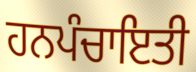
ਹਨਪੰਚਾਇਤੀ